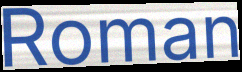
Roman